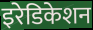
इरेडिकेशन